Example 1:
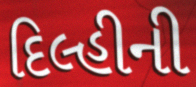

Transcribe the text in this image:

દિલ્હીની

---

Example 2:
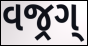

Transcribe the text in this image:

વજ્રગ્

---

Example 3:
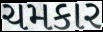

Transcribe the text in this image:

ચમકાર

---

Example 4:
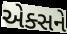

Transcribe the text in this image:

એક્સને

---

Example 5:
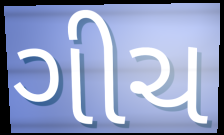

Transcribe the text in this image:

ગીચ